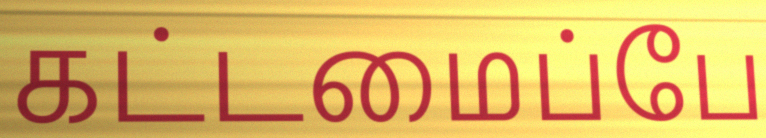
கட்டமைப்பே